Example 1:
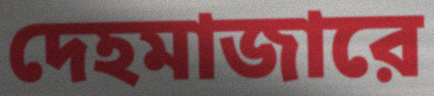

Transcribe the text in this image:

দেহমাজারে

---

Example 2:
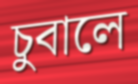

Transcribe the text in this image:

চুবালে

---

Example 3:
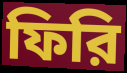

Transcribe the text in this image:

ফিরি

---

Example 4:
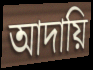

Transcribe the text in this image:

আদায়ি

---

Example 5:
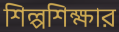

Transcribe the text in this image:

শিল্পশিক্ষার